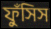
ফুঁসিস